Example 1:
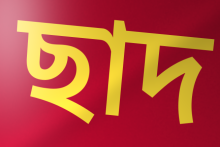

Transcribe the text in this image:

ছাদ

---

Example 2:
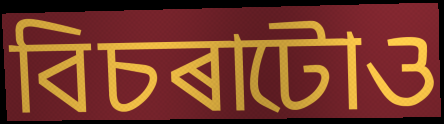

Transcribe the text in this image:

বিচৰাটোও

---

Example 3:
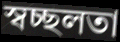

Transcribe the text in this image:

স্বচ্ছলতা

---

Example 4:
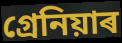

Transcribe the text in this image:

গ্ৰেনিয়াৰ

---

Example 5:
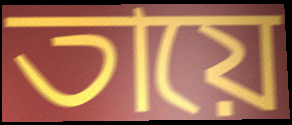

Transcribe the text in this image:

তায়ে